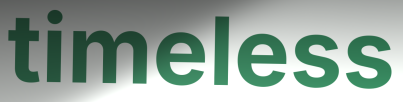
timeless